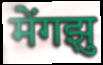
मेंगझु